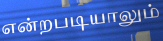
என்றபடியாலும்